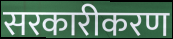
सरकारीकरण